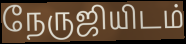
நேருஜியிடம்